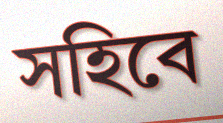
সহিবে